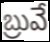
బ్రువే